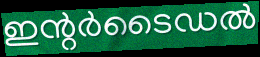
ഇന്റർടൈഡൽ